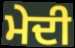
ਮੇਦੀ